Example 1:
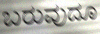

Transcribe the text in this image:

ಬರುವುದೂ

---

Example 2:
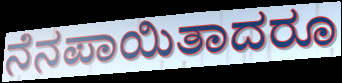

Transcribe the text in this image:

ನೆನಪಾಯಿತಾದರೂ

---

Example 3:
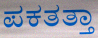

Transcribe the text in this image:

ಪಕತತ್ತಾ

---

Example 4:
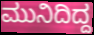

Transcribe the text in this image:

ಮುನಿದಿದ್ದ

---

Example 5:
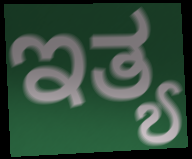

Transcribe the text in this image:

ಇತ್ಯ